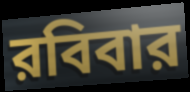
রবিবার